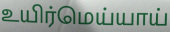
உயிர்மெய்யாய்